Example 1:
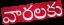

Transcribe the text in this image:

వారలకు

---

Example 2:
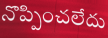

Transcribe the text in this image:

నొప్పించలేదు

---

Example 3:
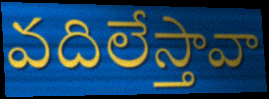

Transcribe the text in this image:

వదిలేస్తావా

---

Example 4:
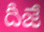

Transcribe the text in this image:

దీజే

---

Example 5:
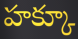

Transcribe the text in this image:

హక్కూ